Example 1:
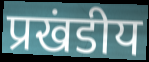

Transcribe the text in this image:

प्रखंडीय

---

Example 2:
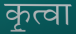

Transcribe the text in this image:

कृ॒त्वा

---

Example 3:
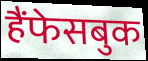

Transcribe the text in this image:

हैंफेसबुक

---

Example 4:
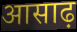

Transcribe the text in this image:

आसाढ़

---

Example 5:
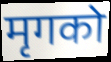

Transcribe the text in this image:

मृगको